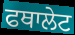
ਫਥਾਲੇਟ